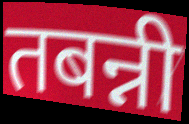
तबन्नी